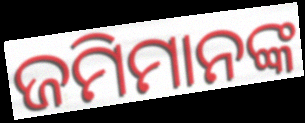
ଜମିମାନଙ୍କ